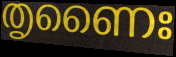
തൃണൈഃ